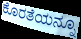
ಕೊರತೆಯನ್ನೂ